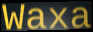
Waxa